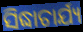
ସିଦ୍ଧାଚାର୍ଯ୍ୟ